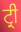
ਟ੍ਰੀ